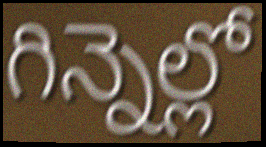
గిన్నెల్లో